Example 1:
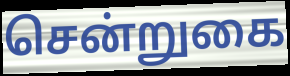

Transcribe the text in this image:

சென்றுகை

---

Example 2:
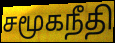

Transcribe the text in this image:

சமூகநீதி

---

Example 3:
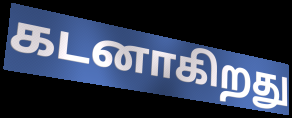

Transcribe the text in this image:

கடனாகிறது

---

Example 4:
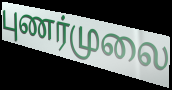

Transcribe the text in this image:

புணர்முலை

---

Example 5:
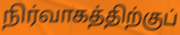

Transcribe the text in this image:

நிர்வாகத்திற்குப்